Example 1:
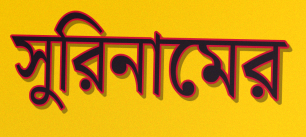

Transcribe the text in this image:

সুরিনামের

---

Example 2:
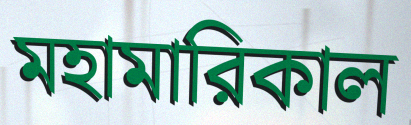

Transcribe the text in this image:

মহামারিকাল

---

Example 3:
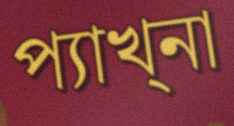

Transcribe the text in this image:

প্যাখ্না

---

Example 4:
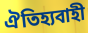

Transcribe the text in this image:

ঐতিহ্যবাহী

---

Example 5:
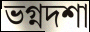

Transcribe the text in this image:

ভগ্নদশা